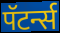
पॅटर्न्स